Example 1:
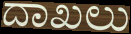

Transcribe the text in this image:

ದಾಖಲು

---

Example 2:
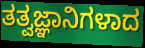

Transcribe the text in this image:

ತತ್ವಜ್ಞಾನಿಗಳಾದ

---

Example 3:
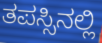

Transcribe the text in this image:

ತಪಸ್ಸಿನಲ್ಲಿ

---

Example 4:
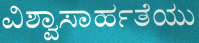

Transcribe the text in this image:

ವಿಶ್ವಾಸಾರ್ಹತೆಯು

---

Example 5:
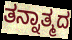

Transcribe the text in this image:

ತನ್ನಾತ್ಮದ